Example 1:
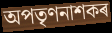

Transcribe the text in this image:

অপতৃণনাশকৰ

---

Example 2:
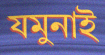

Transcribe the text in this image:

যমুনাই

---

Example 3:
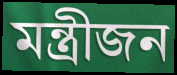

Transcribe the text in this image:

মন্ত্ৰীজন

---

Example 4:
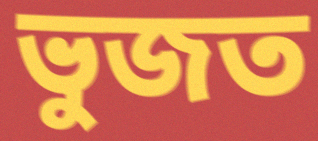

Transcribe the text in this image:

ভুজত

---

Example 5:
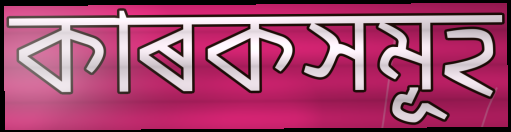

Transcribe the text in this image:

কাৰকসমূহ